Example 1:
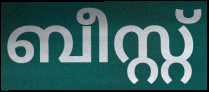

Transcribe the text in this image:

ബീസ്റ്റ്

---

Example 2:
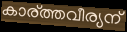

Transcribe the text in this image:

കാര്ത്തവീര്യന്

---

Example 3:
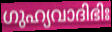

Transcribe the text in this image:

ഗുഹ്യവാദിഭിഃ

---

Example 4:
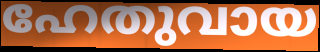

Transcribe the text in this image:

ഹേതുവായ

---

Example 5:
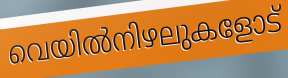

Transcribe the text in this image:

വെയിൽനിഴലുകളോട്